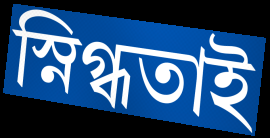
স্নিগ্ধতাই